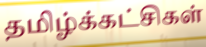
தமிழ்க்கட்சிகள்